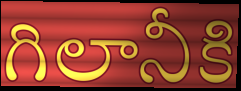
గిలానీకి